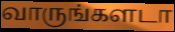
வாருங்களடா